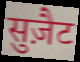
सुज़ैट